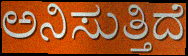
ಅನಿಸುತ್ತಿದೆ